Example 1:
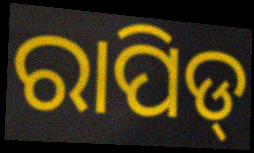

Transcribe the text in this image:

ରାପିଡ୍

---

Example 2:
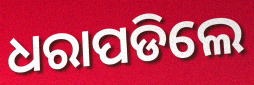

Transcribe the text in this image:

ଧରାପଡିଲେ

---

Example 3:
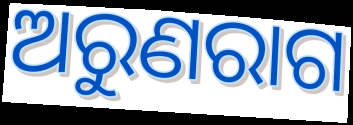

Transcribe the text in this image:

ଅରୁଣରାଗ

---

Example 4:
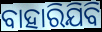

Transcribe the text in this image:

ବାହାରିଯିବି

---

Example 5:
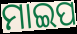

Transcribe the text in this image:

ମାଇପ